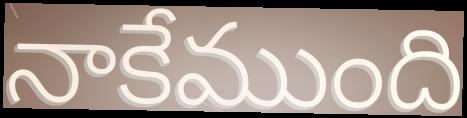
నాకేముంది